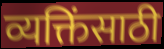
व्यक्तिंसाठी